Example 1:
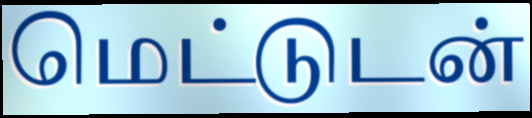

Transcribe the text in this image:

மெட்டுடன்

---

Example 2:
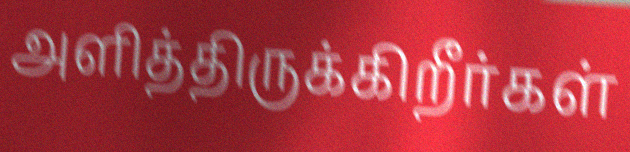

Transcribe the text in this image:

அளித்திருக்கிறீர்கள்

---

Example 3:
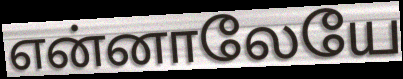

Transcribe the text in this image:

என்னாலேயே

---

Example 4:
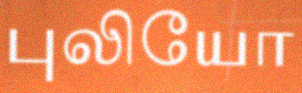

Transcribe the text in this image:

புலியோ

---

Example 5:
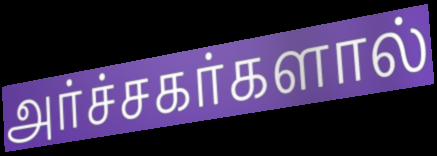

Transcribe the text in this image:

அர்ச்சகர்களால்